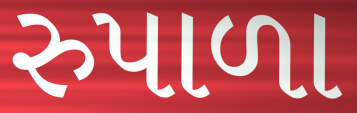
રુપાળા